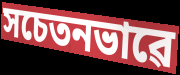
সচেতনভাৱে